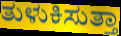
ತುಳುಕಿಸುತ್ತಾ